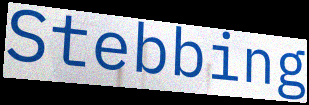
Stebbing